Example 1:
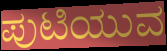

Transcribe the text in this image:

ಪುಟಿಯುವ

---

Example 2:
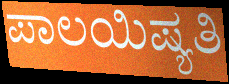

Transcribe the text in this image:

ಪಾಲಯಿಷ್ಯತಿ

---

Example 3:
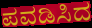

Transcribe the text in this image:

ಪವಡಿಸಿದ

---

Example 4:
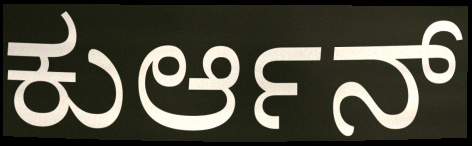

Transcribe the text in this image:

ಕುರ್ಆನ್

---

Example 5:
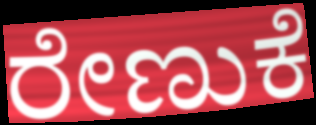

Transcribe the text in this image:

ರೇಣುಕೆ